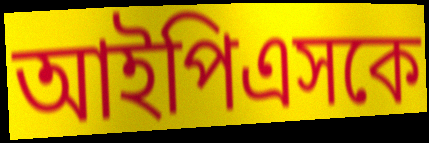
আইপিএসকে